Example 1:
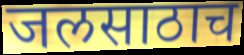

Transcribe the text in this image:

जलसाठाच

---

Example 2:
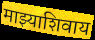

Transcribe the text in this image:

माझ्याशिवाय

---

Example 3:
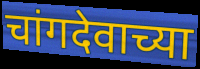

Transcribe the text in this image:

चांगदेवाच्या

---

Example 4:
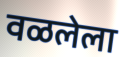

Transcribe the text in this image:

वळलेला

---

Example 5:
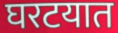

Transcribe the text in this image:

घरटयात